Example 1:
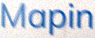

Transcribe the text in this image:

Mapin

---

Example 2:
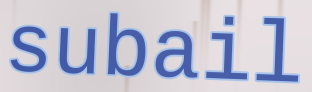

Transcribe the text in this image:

subail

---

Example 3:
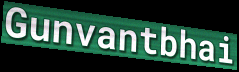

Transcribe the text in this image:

Gunvantbhai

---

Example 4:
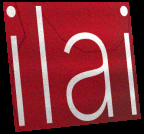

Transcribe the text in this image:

ilai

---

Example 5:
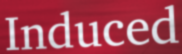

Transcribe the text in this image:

Induced